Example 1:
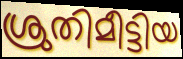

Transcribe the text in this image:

ശ്രുതിമീട്ടിയ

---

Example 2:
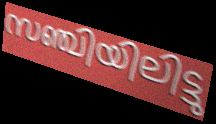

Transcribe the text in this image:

സഞ്ചിയിലിട്ടു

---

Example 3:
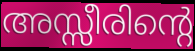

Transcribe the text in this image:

അസ്സീരിന്റെ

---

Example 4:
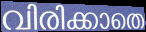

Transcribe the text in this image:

വിരിക്കാതെ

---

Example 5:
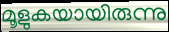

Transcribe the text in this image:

മൂളുകയായിരുന്നു